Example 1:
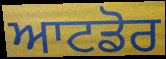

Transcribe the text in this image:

ਆਟਡੋਰ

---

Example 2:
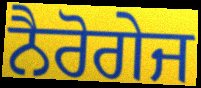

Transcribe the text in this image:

ਨੈਰੋਗੇਜ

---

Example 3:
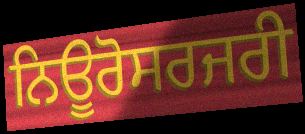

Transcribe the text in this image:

ਨਿਊਰੋਸਰਜਰੀ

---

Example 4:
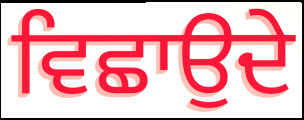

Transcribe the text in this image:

ਵਿਛਾਉਦੇ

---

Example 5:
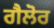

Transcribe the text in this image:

ਗੈਲੋਰ